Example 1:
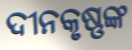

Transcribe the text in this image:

ଦୀନକୃଷ୍ଣଙ୍କ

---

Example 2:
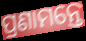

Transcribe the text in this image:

ପ୍ରଣାମନ୍ତେ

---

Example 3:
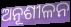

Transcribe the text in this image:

ଅନୂଶୀଳନ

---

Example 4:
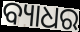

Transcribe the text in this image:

ବ୍ୟାଧର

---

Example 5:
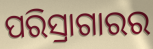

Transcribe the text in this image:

ପରିସ୍ରାଗାରର